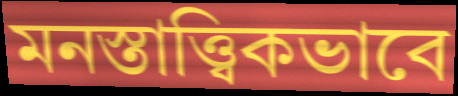
মনস্তাত্ত্বিকভাবে